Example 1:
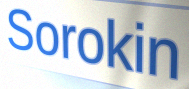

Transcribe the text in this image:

Sorokin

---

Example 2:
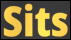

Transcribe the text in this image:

Sits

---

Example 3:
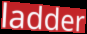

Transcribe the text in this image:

ladder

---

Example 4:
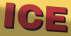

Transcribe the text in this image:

ICE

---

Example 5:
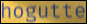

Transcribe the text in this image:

hogutte